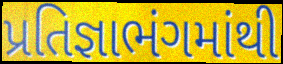
પ્રતિજ્ઞાભંગમાંથી